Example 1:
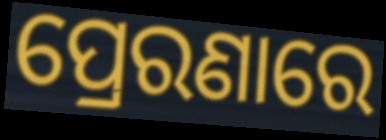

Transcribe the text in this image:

ପ୍ରେରଣାରେ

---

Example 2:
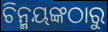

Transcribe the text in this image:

ଚିନ୍ମୟଙ୍କଠାରୁ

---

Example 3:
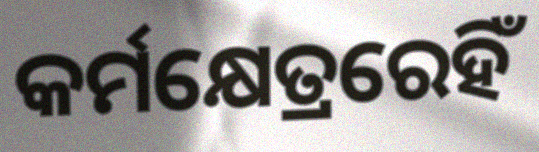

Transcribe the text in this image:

କର୍ମକ୍ଷେତ୍ରରେହିଁ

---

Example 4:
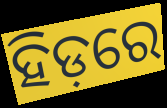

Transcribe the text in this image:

ହିଡ଼ରେ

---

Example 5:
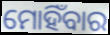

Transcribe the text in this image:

ମୋହିଁବାର